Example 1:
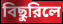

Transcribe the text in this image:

বিছুরিলে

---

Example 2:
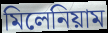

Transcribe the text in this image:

মিলেনিয়াম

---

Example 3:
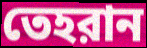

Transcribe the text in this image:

তেহরান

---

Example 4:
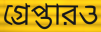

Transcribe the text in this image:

গ্রেপ্তারও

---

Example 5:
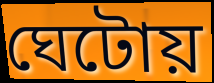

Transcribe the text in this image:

ঘেটোয়